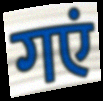
गएं